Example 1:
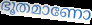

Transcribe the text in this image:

ഭൂതമാണോ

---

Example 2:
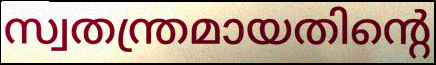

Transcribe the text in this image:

സ്വതന്ത്രമായതിന്റെ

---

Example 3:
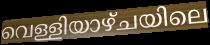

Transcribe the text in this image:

വെള്ളിയാഴ്ചയിലെ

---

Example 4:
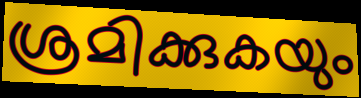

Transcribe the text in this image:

ശ്രമിക്കുകയും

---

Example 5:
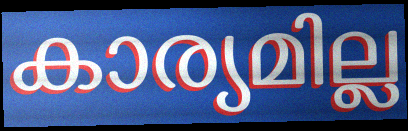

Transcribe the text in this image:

കാര്യമില്ല